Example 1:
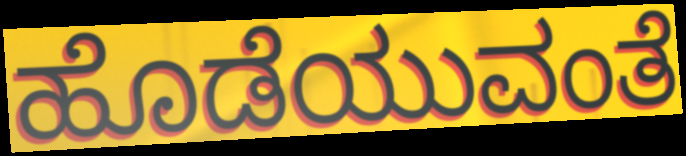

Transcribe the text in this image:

ಹೊಡೆಯುವಂತೆ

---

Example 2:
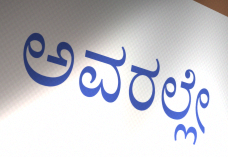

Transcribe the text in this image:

ಅವರಲ್ಲೇ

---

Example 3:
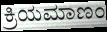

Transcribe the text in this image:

ಕ್ರಿಯಮಾಣಂ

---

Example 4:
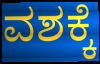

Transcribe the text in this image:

ವಶಕ್ಕೆ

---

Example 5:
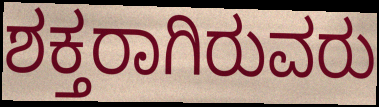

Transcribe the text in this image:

ಶಕ್ತರಾಗಿರುವರು